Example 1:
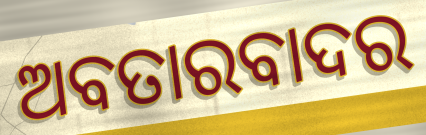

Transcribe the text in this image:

ଅବତାରବାଦର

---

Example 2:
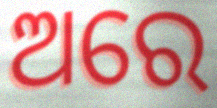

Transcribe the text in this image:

ଅରେ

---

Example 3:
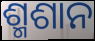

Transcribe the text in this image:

ଶ୍ମଶାନ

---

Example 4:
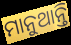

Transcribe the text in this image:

ମାନୁଥାନ୍ତି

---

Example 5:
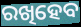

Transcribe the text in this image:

ରଖିହେବ